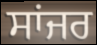
ਸਾਂਜਰ